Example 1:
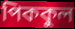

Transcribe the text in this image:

পিককুল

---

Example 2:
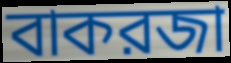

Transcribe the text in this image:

বাকরজা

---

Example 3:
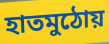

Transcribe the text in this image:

হাতমুঠোয়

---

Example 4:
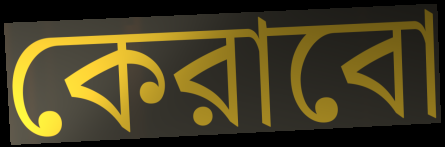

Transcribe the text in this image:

কেরাবো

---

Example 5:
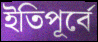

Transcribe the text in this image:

ইতিপূর্বে